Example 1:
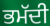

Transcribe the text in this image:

ਭਮੱਦੀ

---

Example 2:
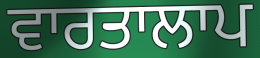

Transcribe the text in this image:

ਵਾਰਤਾਲਾਪ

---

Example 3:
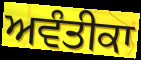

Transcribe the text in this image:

ਅਵੰਤੀਕਾ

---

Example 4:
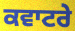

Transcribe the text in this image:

ਕਵਾਟਰੇ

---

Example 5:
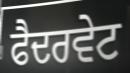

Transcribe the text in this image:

ਫੈਦਰਵੇਟ